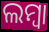
ଲମ୍ବା